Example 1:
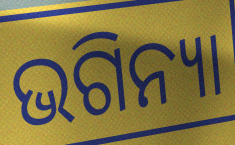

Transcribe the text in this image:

ଭଗିନ୍ୟା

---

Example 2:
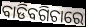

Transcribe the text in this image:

ବାଡିବଗିଚାରେ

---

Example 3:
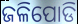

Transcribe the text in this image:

ଜଳିପୋଡି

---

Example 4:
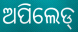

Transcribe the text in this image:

ଅପିଲେଡ୍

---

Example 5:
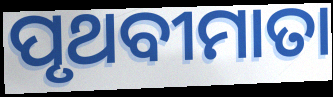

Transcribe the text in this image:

ପୃଥବୀମାତା